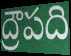
ద్రౌపది